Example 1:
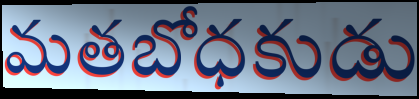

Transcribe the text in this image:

మతబోధకుడు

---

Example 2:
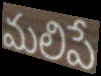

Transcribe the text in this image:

మలిపే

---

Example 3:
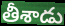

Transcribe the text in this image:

తీశాడు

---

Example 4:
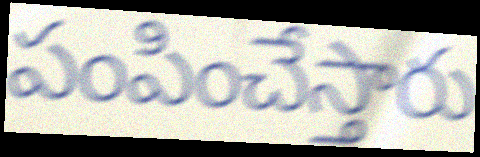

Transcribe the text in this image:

పంపించేస్తారు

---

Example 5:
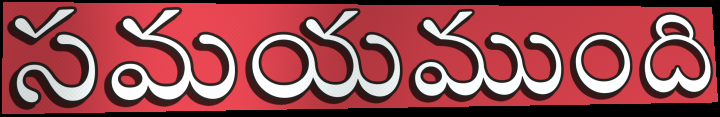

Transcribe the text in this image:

సమయముంది